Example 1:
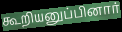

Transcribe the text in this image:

கூறியனுப்பினார்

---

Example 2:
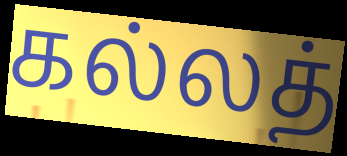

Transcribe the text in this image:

கல்லத்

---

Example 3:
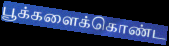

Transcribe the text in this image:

பூக்களைக்கொண்ட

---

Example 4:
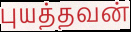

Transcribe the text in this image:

புயத்தவன்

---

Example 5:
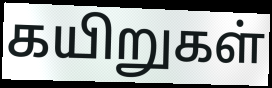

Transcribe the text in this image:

கயிறுகள்